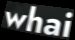
whai